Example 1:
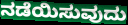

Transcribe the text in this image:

ನಡೆಯಿಸುವುದು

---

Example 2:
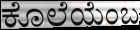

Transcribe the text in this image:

ಕೊಲೆಯೆಂಬ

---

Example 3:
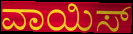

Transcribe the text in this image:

ವಾಯಿಸ್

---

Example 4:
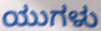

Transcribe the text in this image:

ಯುಗಳು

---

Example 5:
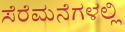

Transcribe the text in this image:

ಸೆರೆಮನೆಗಳಲ್ಲಿ